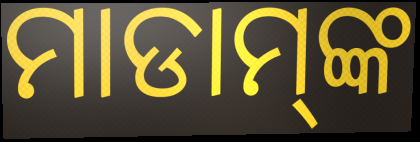
ମାଡାମ୍‌ଙ୍କ